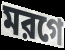
মরগে